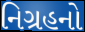
નિગ્રહનો